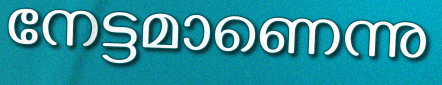
നേട്ടമാണെന്നു